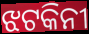
ଝଟକିନୀ